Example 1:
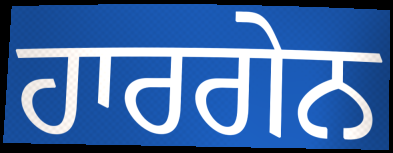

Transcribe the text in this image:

ਹਾਰਗੇਨ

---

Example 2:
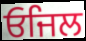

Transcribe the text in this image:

ਓਜਿਲ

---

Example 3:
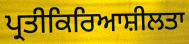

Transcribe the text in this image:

ਪ੍ਰਤੀਕਿਰਿਆਸ਼ੀਲਤਾ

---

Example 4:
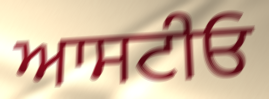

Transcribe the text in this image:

ਆਸਟੀਓ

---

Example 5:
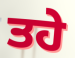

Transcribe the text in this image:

ਤਹੇ